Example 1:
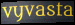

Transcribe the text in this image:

vyvasta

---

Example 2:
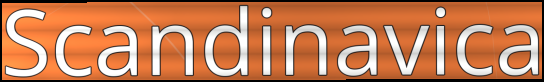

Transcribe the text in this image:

Scandinavica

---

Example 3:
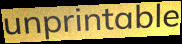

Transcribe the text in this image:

unprintable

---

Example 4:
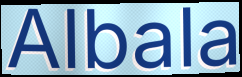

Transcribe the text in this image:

Albala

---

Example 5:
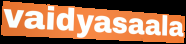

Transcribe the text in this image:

vaidyasaala